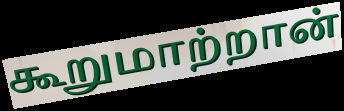
கூறுமாற்றான்